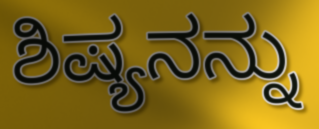
ಶಿಷ್ಯನನ್ನು